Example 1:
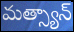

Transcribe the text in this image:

మత్స్యాన్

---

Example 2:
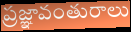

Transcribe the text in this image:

ప్రజ్ఞావంతురాలు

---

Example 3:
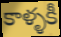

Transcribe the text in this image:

కాళ్ళకీ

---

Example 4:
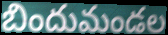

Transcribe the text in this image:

బిందుమండల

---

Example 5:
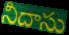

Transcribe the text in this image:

నీదాసు